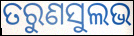
ତରୁଣସୁଲଭ